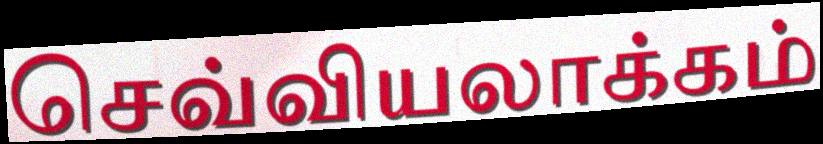
செவ்வியலாக்கம்